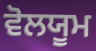
ਵੋਲਯੂਮ